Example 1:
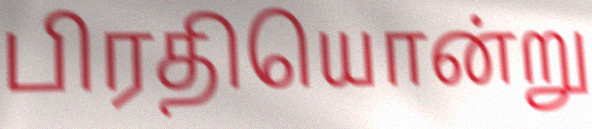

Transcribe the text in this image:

பிரதியொன்று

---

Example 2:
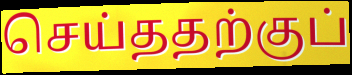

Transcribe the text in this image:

செய்ததற்குப்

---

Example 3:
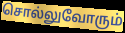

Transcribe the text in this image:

சொல்லுவோரும்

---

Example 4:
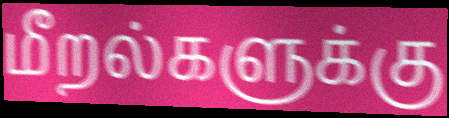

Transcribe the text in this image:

மீறல்களுக்கு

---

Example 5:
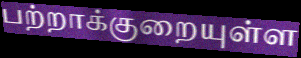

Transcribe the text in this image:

பற்றாக்குறையுள்ள